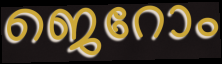
ജെറോം